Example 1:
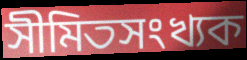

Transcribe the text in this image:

সীমিতসংখ্যক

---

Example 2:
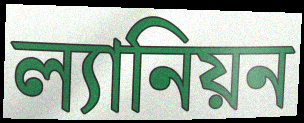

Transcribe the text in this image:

ল্যানিয়ন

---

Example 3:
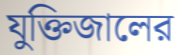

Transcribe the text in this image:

যুক্তিজালের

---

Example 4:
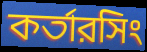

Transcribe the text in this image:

কর্তারসিং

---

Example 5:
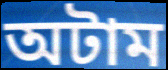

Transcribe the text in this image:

অটাম